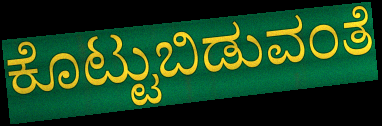
ಕೊಟ್ಟುಬಿಡುವಂತೆ